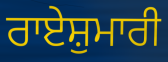
ਰਾਏਸ਼ੁਮਾਰੀ